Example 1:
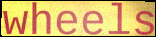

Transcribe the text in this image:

wheels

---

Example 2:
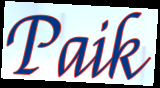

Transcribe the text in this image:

Paik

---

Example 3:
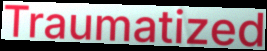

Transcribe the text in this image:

Traumatized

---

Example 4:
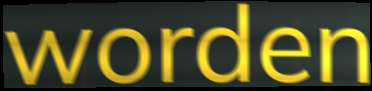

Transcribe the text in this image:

worden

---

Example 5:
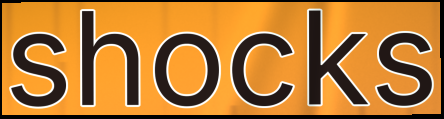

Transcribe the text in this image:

shocks